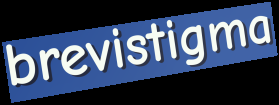
brevistigma